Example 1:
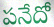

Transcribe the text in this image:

పనేదో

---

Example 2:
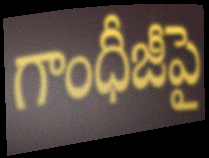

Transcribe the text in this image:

గాంధీజీపై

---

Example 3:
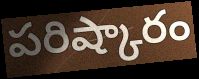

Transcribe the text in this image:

పరిష్కారం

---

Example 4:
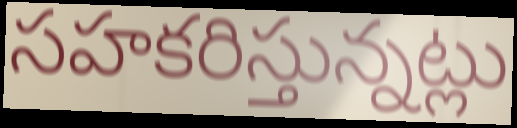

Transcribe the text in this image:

సహకరిస్తున్నట్లు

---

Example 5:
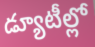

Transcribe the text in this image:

డ్యూటీల్లో